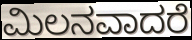
ಮಿಲನವಾದರೆ